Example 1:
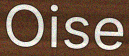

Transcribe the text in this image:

Oise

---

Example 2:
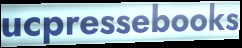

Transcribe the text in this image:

ucpressebooks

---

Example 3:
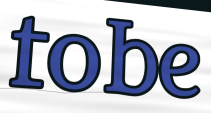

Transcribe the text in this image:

tobe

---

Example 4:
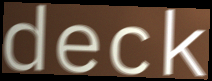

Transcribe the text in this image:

deck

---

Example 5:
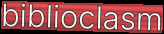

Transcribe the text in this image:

biblioclasm